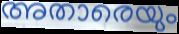
അതാരെയും